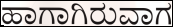
ಹಾಗಾಗಿರುವಾಗ